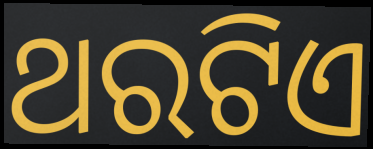
ଥରଟିଏ